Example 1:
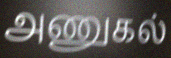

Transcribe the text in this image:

அணுகல்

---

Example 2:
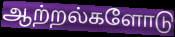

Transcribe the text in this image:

ஆற்றல்களோடு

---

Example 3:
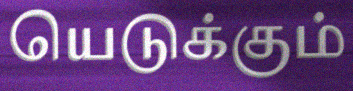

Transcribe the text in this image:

யெடுக்கும்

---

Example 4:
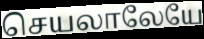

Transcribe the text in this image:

செயலாலேயே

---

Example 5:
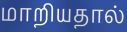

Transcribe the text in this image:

மாறியதால்